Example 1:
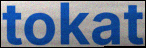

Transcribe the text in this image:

tokat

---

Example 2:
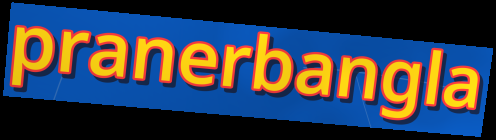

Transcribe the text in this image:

pranerbangla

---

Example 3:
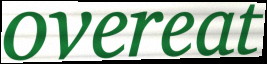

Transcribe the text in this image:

overeat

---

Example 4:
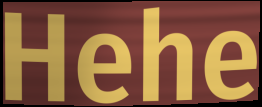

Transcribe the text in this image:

Hehe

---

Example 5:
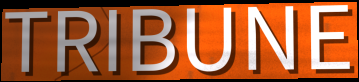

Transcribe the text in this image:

TRIBUNE